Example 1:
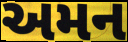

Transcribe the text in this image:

અમન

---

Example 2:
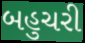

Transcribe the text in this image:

બહુચરી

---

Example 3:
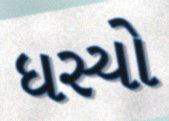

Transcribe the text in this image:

ધસ્યો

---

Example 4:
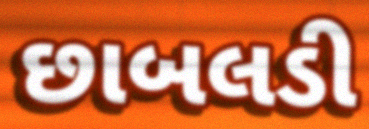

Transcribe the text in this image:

છાબલડી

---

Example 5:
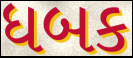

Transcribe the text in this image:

ધબક